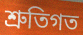
শ্রুতিগত